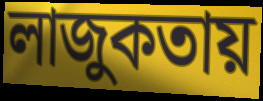
লাজুকতায়